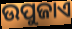
ଉପୁଜାଏ